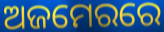
ଅଜମେରରେ